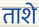
ताशे